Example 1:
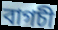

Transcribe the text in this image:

বাগচী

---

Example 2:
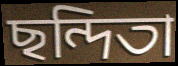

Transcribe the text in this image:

ছন্দিতা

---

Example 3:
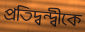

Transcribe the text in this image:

প্রতিদ্বন্দ্বীকে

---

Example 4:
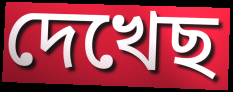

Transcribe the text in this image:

দেখেছ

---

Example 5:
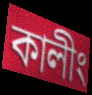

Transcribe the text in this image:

কালীং